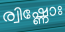
ര്വിഷ്ണോഃ